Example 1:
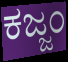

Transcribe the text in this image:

ಕಜ್ಜಂ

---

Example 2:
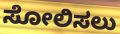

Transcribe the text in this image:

ಸೋಲಿಸಲು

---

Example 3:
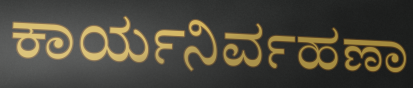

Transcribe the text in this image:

ಕಾರ್ಯನಿರ್ವಹಣಾ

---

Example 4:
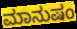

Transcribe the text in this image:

ಮಾನುಷಂ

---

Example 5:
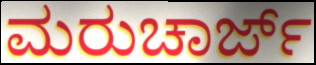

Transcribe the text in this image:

ಮರುಚಾರ್ಜ್